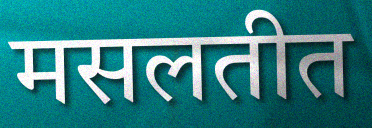
मसलतीत